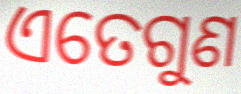
ଏତେଗୁଣ